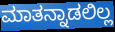
ಮಾತನ್ನಾಡಲಿಲ್ಲ